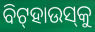
ବିଟ୍‌ହାଉସ୍‌କୁ